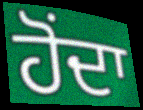
ਹੋਂਦਾ